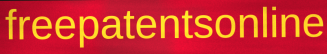
freepatentsonline